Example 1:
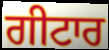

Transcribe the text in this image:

ਗੀਟਾਰ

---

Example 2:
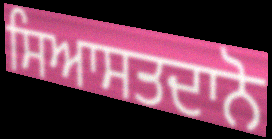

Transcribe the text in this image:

ਸਿਆਸਤਦਾਨੋ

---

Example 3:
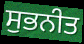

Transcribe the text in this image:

ਸੁਭਨੀਤ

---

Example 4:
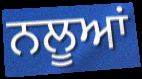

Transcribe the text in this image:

ਨਲੂਆਂ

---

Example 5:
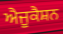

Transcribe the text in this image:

ਐਜੂਕੈਸ਼ਨ